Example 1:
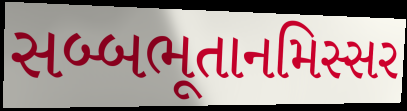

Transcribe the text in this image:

સબ્બભૂતાનમિસ્સર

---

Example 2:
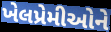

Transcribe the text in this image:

ખેલપ્રેમીઓને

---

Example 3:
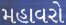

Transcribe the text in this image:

મહાવરો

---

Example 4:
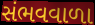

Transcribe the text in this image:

સંભવવાળા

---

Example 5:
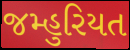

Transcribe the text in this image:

જમ્હુરિયત